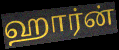
ஹார்ன்